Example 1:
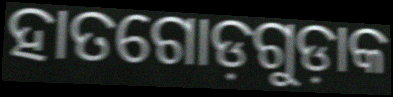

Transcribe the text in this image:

ହାତଗୋଡ଼ଗୁଡ଼ାକ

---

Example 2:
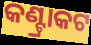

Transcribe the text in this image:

କଣ୍ଟ୍ରାକଟ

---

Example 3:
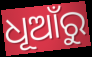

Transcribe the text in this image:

ଧୂଆଁରୁ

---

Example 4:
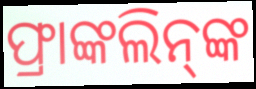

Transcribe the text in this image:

ଫ୍ରାଙ୍କଲିନ୍‌ଙ୍କ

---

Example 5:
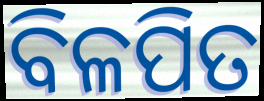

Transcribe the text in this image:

ବିଳପିତ